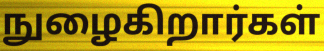
நுழைகிறார்கள்